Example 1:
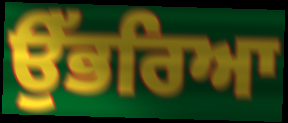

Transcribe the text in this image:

ਉੱਭਰਿਆ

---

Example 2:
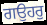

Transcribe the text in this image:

ਗਉਹਰੁ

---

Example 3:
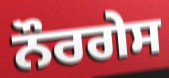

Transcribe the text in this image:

ਨੌਰਗੇਸ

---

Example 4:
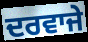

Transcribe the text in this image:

ਦਰਵਾਜੇ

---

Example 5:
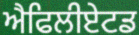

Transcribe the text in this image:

ਐਫਿਲੀਏਟਡ